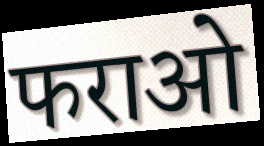
फराओ